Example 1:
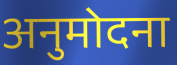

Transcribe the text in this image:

अनुमोदना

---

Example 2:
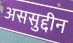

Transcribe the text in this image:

अससुद्दीन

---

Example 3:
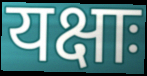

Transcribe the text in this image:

यक्षाः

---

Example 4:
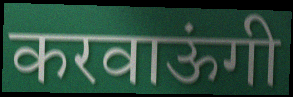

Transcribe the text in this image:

करवाऊंगी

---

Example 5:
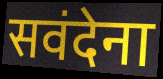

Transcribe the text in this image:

सवंदेना